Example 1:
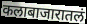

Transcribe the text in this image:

कलाबाजारातलं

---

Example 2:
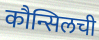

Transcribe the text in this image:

कौन्सिलची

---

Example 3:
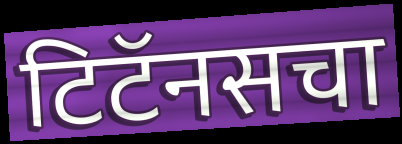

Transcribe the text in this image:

टिटॅनसचा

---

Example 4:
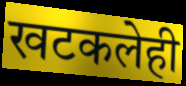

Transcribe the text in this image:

खटकलेही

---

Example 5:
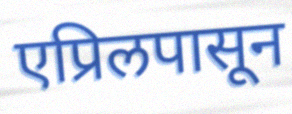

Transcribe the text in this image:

एप्रिलपासून